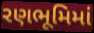
રણભૂમિમાં